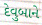
દેવુબાને